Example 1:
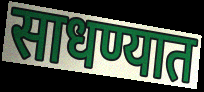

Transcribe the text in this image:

साधण्यात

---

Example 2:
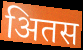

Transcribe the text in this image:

अितस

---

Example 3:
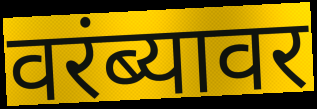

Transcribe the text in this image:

वरंब्यावर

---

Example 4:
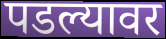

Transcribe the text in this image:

पडल्यावर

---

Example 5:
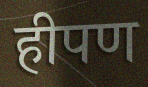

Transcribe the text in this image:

हीपण